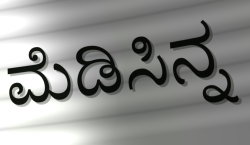
ಮೆಡಿಸಿನ್ನ